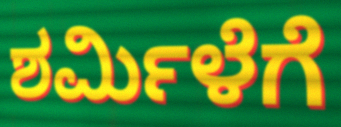
ಶರ್ಮಿಳೆಗೆ